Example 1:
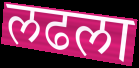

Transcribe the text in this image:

लढला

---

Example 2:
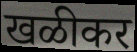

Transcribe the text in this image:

खळीकर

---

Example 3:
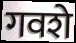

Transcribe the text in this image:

गवशे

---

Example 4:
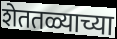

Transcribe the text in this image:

शेततळ्याच्या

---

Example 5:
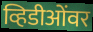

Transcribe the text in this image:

व्हिडीओंवर